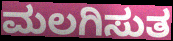
ಮಲಗಿಸುತ